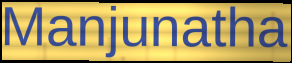
Manjunatha